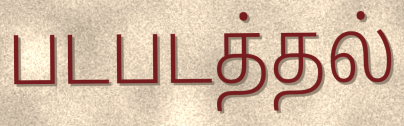
படபடத்தல்